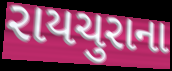
રાયચુરાના